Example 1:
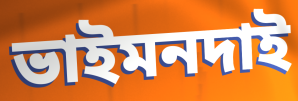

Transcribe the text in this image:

ভাইমনদাই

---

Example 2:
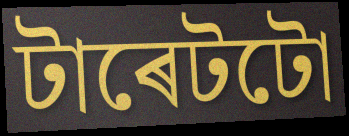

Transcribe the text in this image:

টাৰেটটো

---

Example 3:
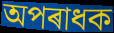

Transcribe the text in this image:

অপৰাধক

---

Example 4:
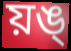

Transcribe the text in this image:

য়ঙ্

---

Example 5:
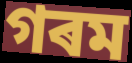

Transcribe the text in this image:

গৰম